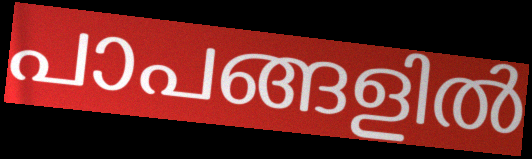
പാപങ്ങളിൽ